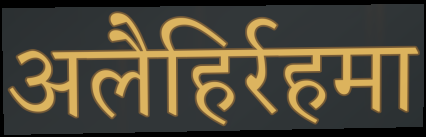
अलैहिर्रहमा